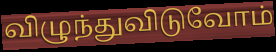
விழுந்துவிடுவோம்